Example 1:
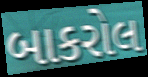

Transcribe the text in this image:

બાકરોલ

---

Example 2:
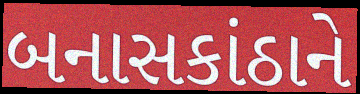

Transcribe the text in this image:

બનાસકાંઠાને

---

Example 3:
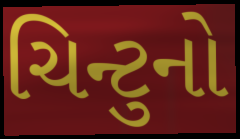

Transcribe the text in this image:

ચિન્ટુનો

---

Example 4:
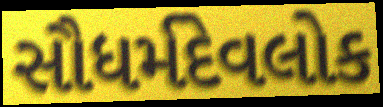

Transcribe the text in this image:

સૌધર્મદેવલોક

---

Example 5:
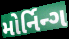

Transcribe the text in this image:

મોર્નિન્ગ